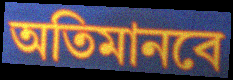
অতিমানবে